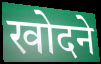
खोदने